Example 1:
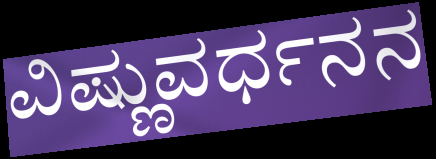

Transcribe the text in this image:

ವಿಷ್ಣುವರ್ಧನನ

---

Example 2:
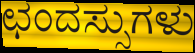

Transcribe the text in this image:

ಛಂದಸ್ಸುಗಳು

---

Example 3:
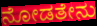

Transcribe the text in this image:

ನೋಡತೇನು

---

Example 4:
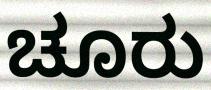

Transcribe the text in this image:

ಚೂರು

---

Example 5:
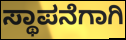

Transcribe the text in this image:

ಸ್ಥಾಪನೆಗಾಗಿ